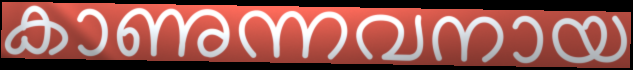
കാണുന്നവനായ